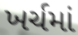
ખર્ચમાં